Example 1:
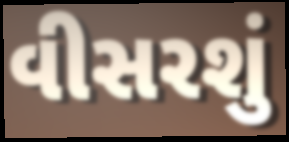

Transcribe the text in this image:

વીસરશું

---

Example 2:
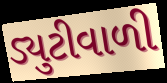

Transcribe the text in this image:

ડ્યુટીવાળી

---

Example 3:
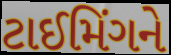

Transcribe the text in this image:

ટાઈમિંગને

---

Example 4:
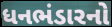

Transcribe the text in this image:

ધનભંડારનો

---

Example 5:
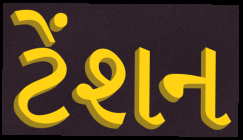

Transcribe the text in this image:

ટેંશન